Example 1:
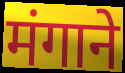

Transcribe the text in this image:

मंगाने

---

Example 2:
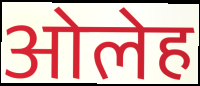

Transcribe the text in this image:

ओलेह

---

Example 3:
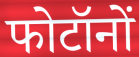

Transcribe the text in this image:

फोटॉनों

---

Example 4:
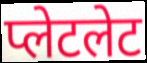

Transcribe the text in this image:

प्लेटलेट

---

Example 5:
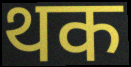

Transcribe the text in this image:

थक